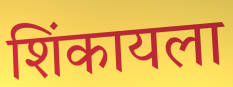
शिंकायला